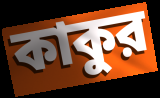
কাকুর